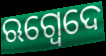
ଋଗ୍ଵେଦେ